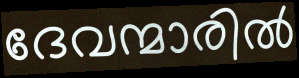
ദേവന്മാരിൽ